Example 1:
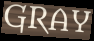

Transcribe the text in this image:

GRAY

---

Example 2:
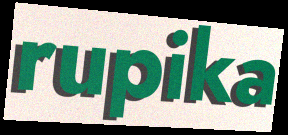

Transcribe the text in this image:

rupika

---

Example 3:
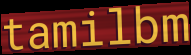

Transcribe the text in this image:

tamilbm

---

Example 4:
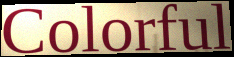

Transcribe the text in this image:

Colorful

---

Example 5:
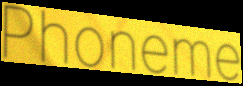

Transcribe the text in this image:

Phoneme